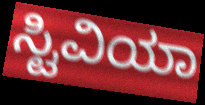
ಸ್ಟಿವಿಯಾ